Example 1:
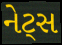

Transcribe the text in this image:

નેટ્સ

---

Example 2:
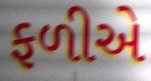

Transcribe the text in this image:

ફળીએ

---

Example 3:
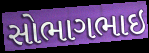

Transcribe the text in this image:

સોભાગભાઇ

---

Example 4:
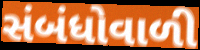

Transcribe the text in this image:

સંબંધોવાળી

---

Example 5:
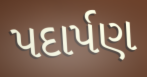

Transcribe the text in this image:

પદાર્પણ